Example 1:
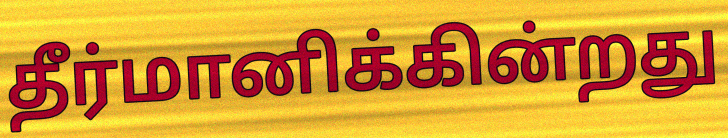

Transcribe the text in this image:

தீர்மானிக்கின்றது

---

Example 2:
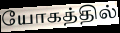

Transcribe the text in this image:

யோகத்தில்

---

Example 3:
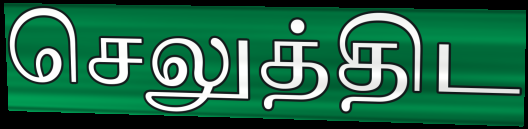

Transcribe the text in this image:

செலுத்திட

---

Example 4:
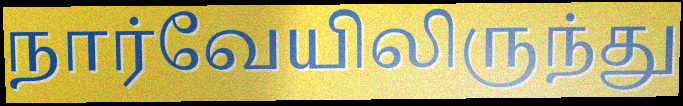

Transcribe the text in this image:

நார்வேயிலிருந்து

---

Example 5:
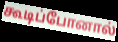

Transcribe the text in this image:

கூடிப்போனால்